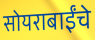
सोयराबाईंचे